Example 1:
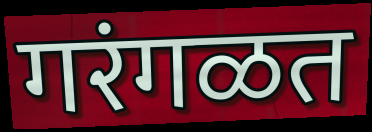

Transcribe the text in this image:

गरंगळत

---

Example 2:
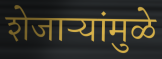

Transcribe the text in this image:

शेजाऱ्यांमुळे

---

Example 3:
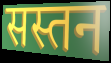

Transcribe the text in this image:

सस्तन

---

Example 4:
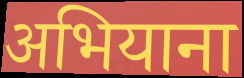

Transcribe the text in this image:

अभियाना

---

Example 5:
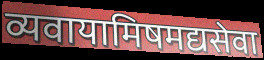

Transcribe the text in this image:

व्यवायामिषमद्यसेवा